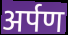
अर्पण